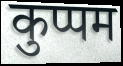
कुप्पम